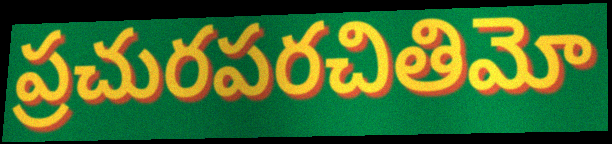
ప్రచురపరచితిమో